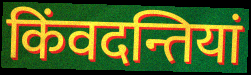
किंवदन्तियां